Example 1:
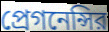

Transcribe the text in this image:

প্রেগনেন্সির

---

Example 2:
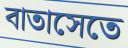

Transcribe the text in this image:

বাতাসেতে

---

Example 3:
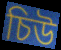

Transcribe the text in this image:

চিউ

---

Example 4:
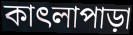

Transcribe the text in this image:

কাৎলাপাড়া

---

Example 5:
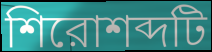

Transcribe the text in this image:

শিরোশব্দটি